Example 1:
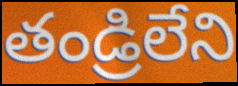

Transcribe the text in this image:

తండ్రిలేని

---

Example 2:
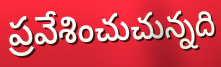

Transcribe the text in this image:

ప్రవేశించుచున్నది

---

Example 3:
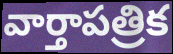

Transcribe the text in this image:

వార్తాపత్రిక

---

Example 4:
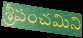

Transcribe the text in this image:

శ్రీపంచమిని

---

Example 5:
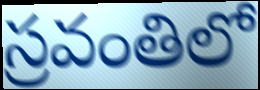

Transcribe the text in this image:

స్రవంతిలో